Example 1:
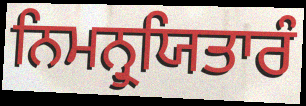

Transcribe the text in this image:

ਨਿਮਨ੍ਤ੍ਰਯਿਤਾਰੰ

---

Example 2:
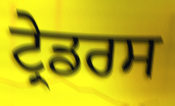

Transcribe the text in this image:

ਟ੍ਰੇਡਰਸ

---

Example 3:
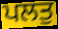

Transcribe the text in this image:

ਪਲਤੁ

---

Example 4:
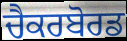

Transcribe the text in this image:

ਚੈਕਰਬੋਰਡ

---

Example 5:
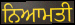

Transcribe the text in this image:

ਨਿਆਮਤੀ